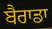
ਬੈਰਾਡਾ